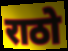
राठो